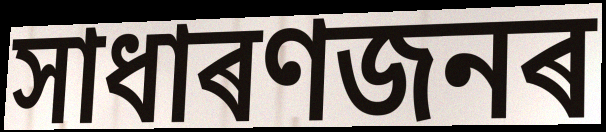
সাধাৰণজনৰ